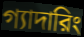
গ্যাদারিং